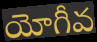
యోగీవ